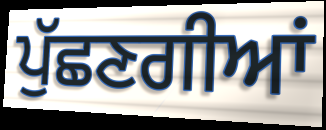
ਪੁੱਛਣਗੀਆਂ